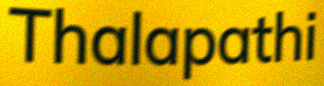
Thalapathi